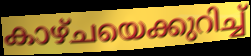
കാഴ്ചയെക്കുറിച്ച്